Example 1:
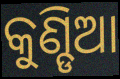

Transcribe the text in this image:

କୁଣ୍ଡିଆ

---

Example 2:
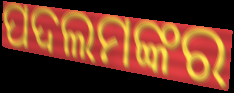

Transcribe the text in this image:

ପଦଲମଙ୍କର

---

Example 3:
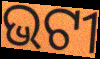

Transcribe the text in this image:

ଭଟୀ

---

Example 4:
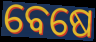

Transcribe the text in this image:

ବେଷେ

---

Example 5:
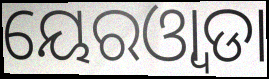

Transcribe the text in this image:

ୟେରଓ୍ୱାଡା